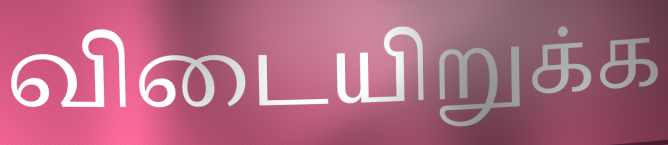
விடையிறுக்க